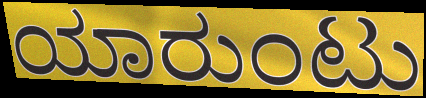
ಯಾರುಂಟು